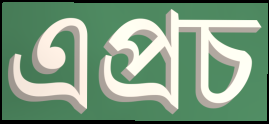
এপ্রচ